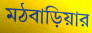
মঠবাড়িয়ার